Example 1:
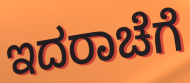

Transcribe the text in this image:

ಇದರಾಚೆಗೆ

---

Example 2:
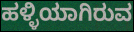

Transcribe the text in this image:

ಹಳ್ಳಿಯಾಗಿರುವ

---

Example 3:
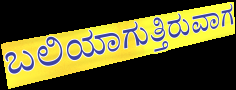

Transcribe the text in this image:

ಬಲಿಯಾಗುತ್ತಿರುವಾಗ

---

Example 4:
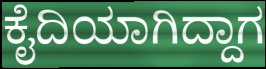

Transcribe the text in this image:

ಕೈದಿಯಾಗಿದ್ದಾಗ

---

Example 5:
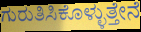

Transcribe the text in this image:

ಗುರುತಿಸಿಕೊಳ್ಳುತ್ತೇನೆ